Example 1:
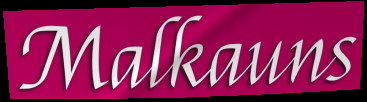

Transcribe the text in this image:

Malkauns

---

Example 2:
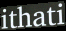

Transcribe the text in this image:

ithati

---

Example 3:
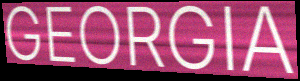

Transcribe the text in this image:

GEORGIA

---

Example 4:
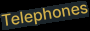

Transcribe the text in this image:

Telephones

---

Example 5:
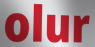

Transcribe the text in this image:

olur